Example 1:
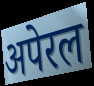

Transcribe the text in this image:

अपेरल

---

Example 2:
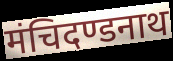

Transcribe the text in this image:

मंचिदण्डनाथ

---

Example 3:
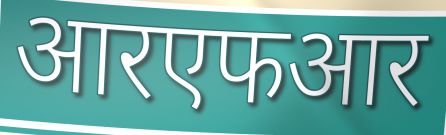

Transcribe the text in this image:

आरएफआर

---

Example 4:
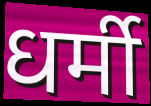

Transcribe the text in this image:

धर्मी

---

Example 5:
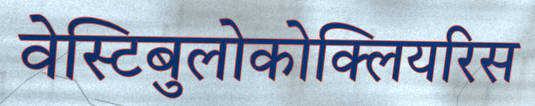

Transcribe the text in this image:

वेस्टिबुलोकोक्लियरिस